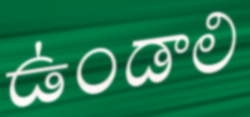
ఉండాలి